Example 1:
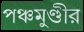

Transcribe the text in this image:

পঞ্চমুণ্ডীর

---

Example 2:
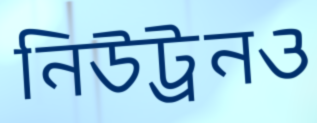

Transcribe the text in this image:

নিউট্রনও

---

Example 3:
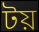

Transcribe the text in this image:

টয়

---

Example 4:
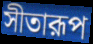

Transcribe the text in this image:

সীতারূপ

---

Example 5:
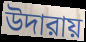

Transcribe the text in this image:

উদারায়